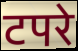
टपरे